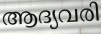
ആദ്യവരി